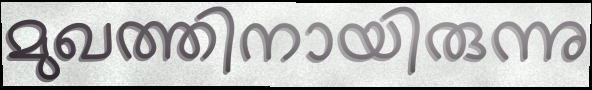
മുഖത്തിനായിരുന്നു